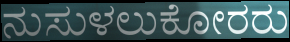
ನುಸುಳಲುಕೋರರು